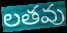
లతవు